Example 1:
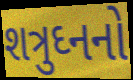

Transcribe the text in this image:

શત્રુઘ્નનો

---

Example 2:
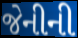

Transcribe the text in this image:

જેનીની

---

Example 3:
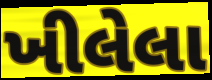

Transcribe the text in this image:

ખીલેલા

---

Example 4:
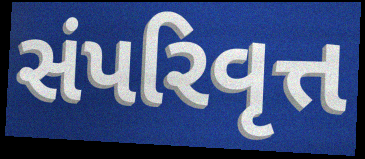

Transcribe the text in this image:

સંપરિવૃત્ત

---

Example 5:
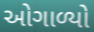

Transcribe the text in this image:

ઓગાળ્યો